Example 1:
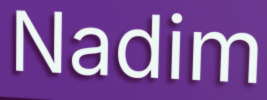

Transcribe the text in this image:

Nadim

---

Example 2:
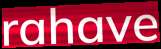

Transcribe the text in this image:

rahave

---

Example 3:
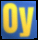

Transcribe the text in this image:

Oy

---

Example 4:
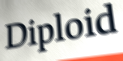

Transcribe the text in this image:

Diploid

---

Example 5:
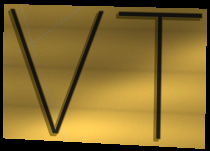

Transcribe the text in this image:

VT